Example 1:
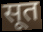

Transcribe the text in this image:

सूत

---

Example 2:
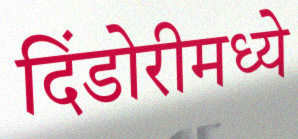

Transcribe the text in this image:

दिंडोरीमध्ये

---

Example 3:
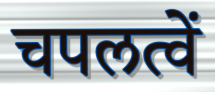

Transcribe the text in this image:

चपलत्वें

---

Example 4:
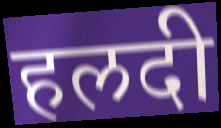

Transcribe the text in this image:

हलदी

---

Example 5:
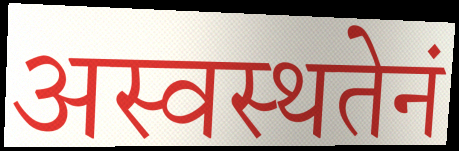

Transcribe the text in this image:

अस्वस्थतेनं